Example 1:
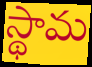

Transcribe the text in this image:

స్థామ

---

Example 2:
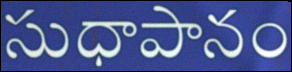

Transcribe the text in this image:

సుధాపానం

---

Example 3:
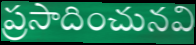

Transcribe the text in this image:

ప్రసాదించునవి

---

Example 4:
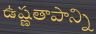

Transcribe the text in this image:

ఉష్ణతాపాన్ని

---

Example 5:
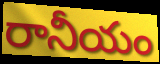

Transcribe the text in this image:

రానీయం